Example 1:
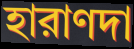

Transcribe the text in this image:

হারাণদা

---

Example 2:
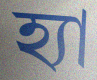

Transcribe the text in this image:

হ্যা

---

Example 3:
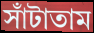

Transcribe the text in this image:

সাঁটাতাম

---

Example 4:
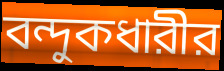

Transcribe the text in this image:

বন্দুকধারীর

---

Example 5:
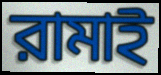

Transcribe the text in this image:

রামাই